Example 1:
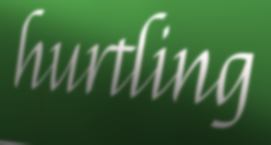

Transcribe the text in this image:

hurtling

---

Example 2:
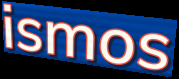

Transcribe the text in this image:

ismos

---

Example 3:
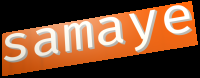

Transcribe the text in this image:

samaye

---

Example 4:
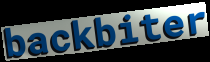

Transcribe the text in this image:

backbiter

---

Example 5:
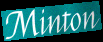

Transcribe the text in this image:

Minton